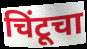
चिंटूचा